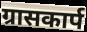
ग्रासकार्प